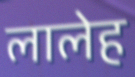
लालेह